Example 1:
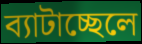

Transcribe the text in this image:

ব্যাটাচ্ছেলে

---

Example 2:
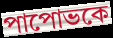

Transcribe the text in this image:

পাপোভকে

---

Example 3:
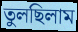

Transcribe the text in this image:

তুলছিলাম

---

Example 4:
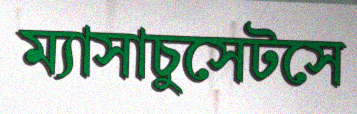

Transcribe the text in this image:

ম্যাসাচুসেটসে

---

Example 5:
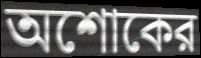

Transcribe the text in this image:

অশোকের